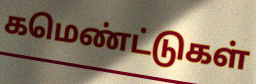
கமெண்ட்டுகள்